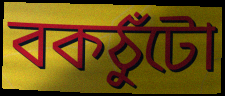
বকঠুঁটো